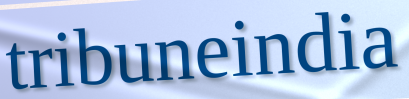
tribuneindia